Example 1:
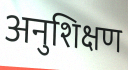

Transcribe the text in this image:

अनुशिक्षण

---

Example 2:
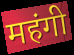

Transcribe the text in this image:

महंगी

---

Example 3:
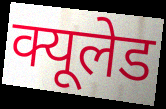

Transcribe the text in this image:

क्यूलेड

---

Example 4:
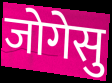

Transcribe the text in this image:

जोगेसु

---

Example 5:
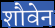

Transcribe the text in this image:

शौवेन